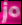
jo